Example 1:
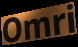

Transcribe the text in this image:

Omri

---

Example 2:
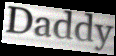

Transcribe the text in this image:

Daddy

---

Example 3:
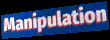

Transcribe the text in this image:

Manipulation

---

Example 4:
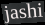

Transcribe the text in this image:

jashi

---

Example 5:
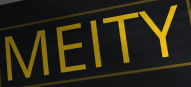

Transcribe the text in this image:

MEITY